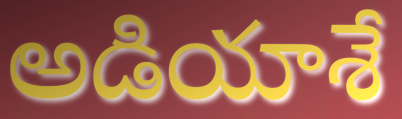
అడియాశే